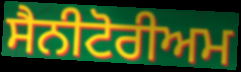
ਸੈਨੀਟੋਰੀਅਮ